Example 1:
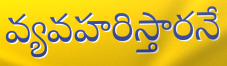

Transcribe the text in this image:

వ్యవహరిస్తారనే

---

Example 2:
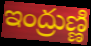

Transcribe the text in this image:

ఇంద్రుణ్ణి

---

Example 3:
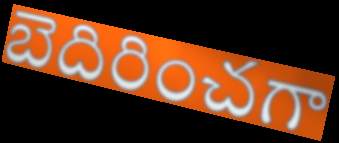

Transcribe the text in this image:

బెదిరించగా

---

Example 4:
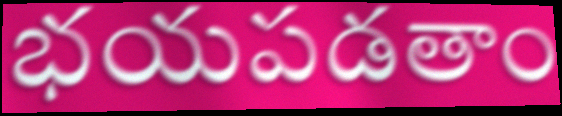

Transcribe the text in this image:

భయపడతాం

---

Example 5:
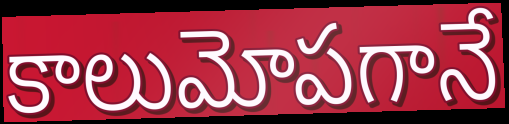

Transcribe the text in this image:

కాలుమోపగానే